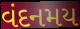
વંદનમય